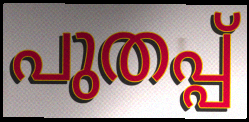
പുതപ്പ്